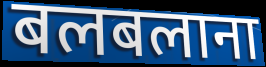
बलबलाना